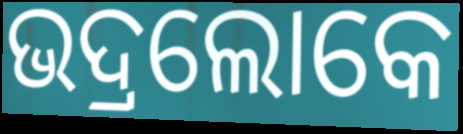
ଭଦ୍ରଲୋକେ